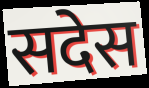
सदेस